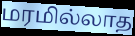
மரமில்லாத